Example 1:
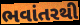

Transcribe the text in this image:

ભવાંતરથી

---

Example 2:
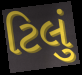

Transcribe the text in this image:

ટિલું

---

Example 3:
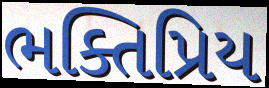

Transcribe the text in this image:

ભક્તિપ્રિય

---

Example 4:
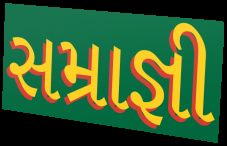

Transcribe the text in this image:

સમ્રાજ્ઞી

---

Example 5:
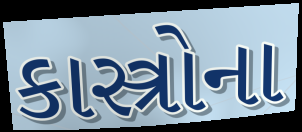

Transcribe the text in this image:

કાસ્ત્રોના